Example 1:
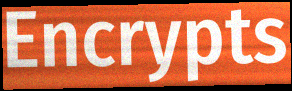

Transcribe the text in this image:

Encrypts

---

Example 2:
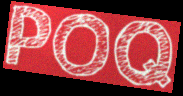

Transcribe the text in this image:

POQ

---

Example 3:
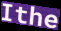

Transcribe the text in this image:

Ithe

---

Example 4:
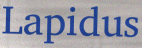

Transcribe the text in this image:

Lapidus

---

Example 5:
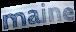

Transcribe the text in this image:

maine